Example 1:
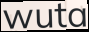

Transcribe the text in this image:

wuta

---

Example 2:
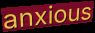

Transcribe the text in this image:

anxious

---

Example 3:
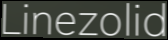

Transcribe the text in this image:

Linezolid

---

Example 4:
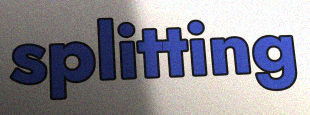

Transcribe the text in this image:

splitting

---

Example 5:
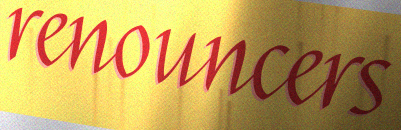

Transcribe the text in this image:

renouncers